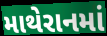
માથેરાનમાં